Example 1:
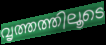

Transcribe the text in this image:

വൃത്തത്തിലൂടെ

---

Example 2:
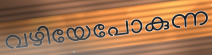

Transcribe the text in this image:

വഴിയേപോകുന്ന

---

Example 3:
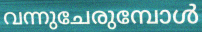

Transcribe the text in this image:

വന്നുചേരുമ്പോൾ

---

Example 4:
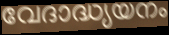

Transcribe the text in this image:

വേദാദ്ധ്യയനം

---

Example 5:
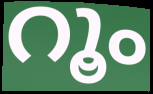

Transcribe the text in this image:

റൂം